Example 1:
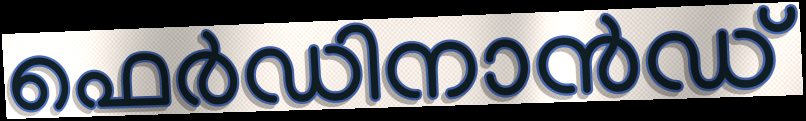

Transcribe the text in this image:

ഫെർഡിനാൻഡ്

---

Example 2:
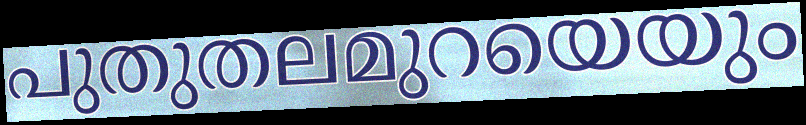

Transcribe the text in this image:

പുതുതലമുറയെയും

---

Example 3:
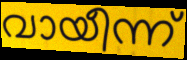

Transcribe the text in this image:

വായീന്ന്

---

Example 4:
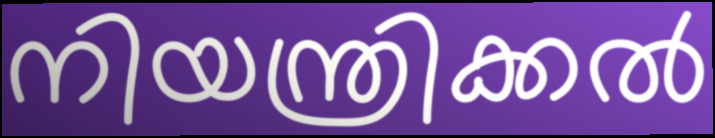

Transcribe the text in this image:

നിയന്ത്രിക്കൽ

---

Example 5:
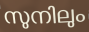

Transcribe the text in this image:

സുനിലും